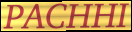
PACHHI